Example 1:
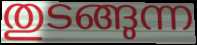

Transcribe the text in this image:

തുടങ്ങുന്ന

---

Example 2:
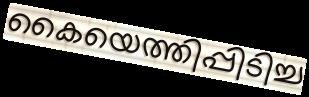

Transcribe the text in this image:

കൈയെത്തിപ്പിടിച്ച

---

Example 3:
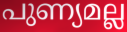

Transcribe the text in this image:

പുണ്യമല്ല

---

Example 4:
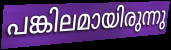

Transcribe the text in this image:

പങ്കിലമായിരുന്നു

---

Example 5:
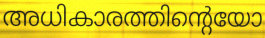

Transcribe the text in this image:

അധികാരത്തിന്റെയോ